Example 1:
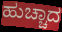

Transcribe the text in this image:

ಹುಚ್ಚಾದ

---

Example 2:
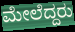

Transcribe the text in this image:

ಮೇಲೆದ್ದರು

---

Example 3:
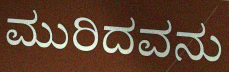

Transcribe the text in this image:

ಮುರಿದವನು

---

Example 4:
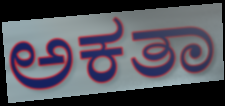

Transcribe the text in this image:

ಅಕತಾ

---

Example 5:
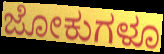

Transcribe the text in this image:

ಜೋಕುಗಳೂ